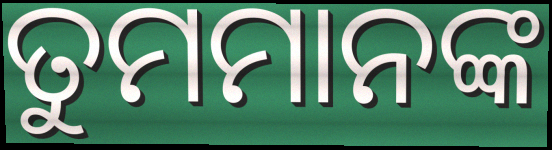
ତୁମମାନଙ୍କ